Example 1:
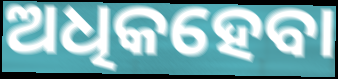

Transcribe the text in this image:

ଅଧିକହେବା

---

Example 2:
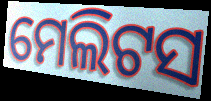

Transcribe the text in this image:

ମେଲିଟସ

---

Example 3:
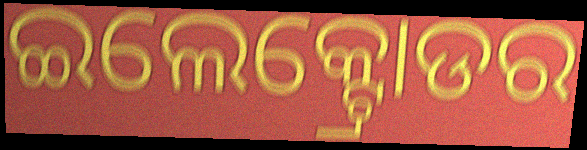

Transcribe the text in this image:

ଇଲେକ୍ଟ୍ରୋଡର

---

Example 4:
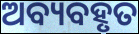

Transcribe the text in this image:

ଅବ୍ୟବହୃତ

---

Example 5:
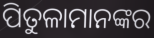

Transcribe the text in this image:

ପିତୁଳାମାନଙ୍କର